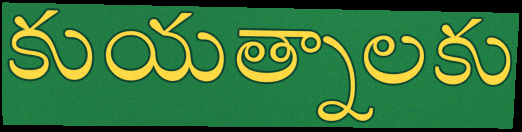
కుయత్నాలకు